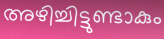
അഴിച്ചിട്ടുണ്ടാകും